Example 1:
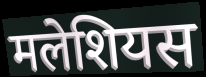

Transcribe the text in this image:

मलेशियस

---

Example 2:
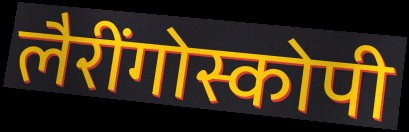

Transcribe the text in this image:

लैरींगोस्कोपी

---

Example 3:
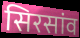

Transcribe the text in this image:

सिरसांव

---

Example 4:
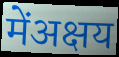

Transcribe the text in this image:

मेंअक्षय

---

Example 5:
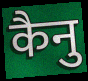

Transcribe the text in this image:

कैनु